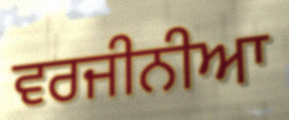
ਵਰਜੀਨੀਆ